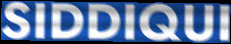
SIDDIQUI